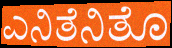
ಎನಿತೆನಿತೊ